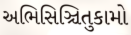
અભિસિઞ્ચિતુકામો